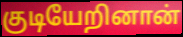
குடியேறினான்